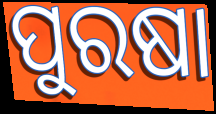
ପୁରଷା